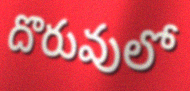
దొరువులో